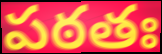
పఠతః